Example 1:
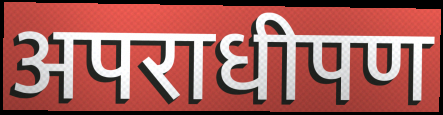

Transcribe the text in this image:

अपराधीपण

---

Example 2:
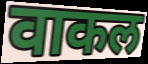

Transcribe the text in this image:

वाकल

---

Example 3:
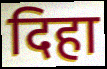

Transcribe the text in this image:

दिहा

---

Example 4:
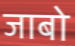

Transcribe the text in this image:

जाबो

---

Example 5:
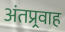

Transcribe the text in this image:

अंतप्र्रवाह